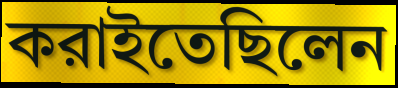
করাইতেছিলেন